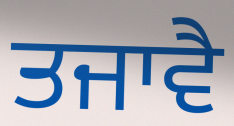
ਤਜਾਵੈ